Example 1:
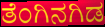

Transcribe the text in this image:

ತೆಂಗಿನಗಿಡ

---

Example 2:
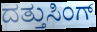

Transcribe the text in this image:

ದತ್ತುಸಿಂಗ್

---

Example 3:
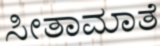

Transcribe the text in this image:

ಸೀತಾಮಾತೆ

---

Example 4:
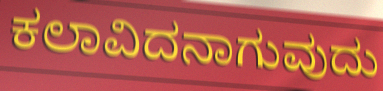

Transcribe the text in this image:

ಕಲಾವಿದನಾಗುವುದು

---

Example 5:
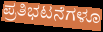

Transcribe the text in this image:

ಪ್ರತಿಭಟನೆಗಳೂ